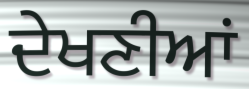
ਦੇਖਣੀਆਂ